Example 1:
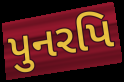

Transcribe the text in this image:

પુનરપિ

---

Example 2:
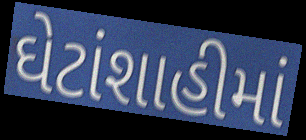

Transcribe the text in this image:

ઘેટાંશાહીમાં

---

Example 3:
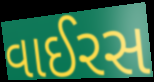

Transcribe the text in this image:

વાઈરસ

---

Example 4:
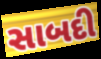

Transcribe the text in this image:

સાબદી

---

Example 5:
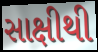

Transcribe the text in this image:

સાક્ષીથી